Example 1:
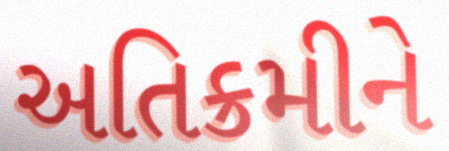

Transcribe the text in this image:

અતિક્રમીને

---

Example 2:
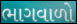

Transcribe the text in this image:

ભાગવાળો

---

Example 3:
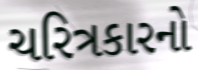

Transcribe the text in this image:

ચરિત્રકારનો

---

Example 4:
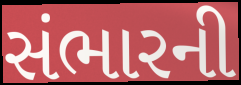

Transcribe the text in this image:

સંભારની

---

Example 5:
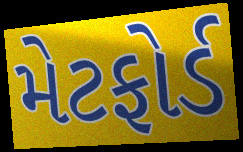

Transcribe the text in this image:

મેટફોર્ડ